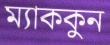
ম্যাককুন